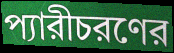
প্যারীচরণের